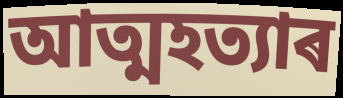
আত্মহত্যাৰ